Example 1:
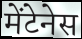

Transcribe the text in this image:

मेंटेनेस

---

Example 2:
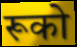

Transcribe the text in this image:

रूको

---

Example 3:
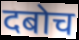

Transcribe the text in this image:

दबोच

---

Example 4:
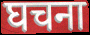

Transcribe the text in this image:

घचना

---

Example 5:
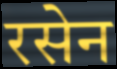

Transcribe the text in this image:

रसेन